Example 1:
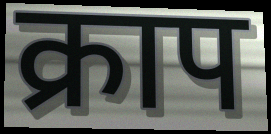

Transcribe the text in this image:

क्राप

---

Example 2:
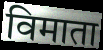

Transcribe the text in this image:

विमाता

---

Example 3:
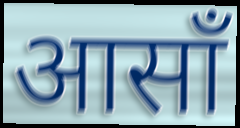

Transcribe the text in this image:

आसाँ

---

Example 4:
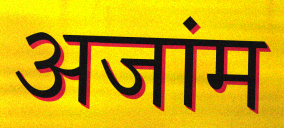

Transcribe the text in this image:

अजांम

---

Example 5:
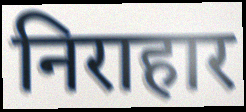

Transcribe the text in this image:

निराहार